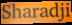
Sharadji